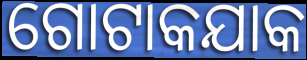
ଗୋଟାକଯାକ